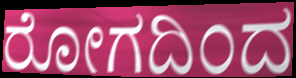
ರೋಗದಿಂದ